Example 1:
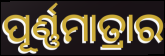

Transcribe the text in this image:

ପୂର୍ଣ୍ଣମାତ୍ରାର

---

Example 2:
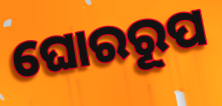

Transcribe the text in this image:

ଘୋରରୂପ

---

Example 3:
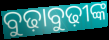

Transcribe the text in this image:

ବୁଢ଼ାବୁଢ଼ୀଙ୍କ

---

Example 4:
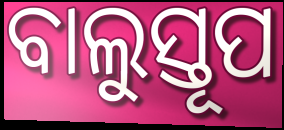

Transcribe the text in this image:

ବାଲୁସ୍ତୂପ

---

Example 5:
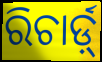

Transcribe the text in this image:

ରିଚାର୍ଡ଼୍